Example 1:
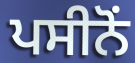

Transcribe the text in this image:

ਪਸੀਨੋਂ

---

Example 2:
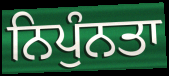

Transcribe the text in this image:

ਨਿਪੁੰਨਤਾ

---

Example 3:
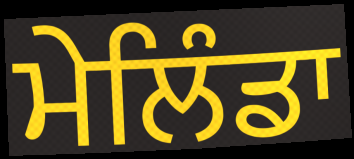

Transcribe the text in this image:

ਮੇਲਿੰਡਾ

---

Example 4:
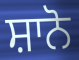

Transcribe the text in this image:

ਸ਼ਾਨੋ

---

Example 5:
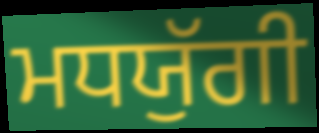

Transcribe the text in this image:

ਮਧਯੁੱਗੀ